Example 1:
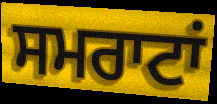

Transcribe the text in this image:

ਸਮਰਾਟਾਂ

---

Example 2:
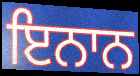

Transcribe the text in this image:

ਇਨਾਨ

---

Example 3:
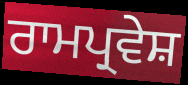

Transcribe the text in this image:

ਰਾਮਪ੍ਰਵੇਸ਼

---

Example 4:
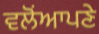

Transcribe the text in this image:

ਵਲੋਂਆਪਣੇ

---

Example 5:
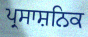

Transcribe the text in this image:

ਪ੍ਰਸਾਸ਼ਨਿਕ